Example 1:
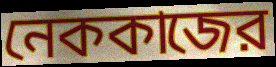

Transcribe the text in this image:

নেককাজের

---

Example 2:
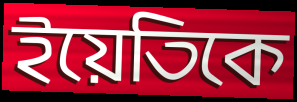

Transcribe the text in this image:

ইয়েতিকে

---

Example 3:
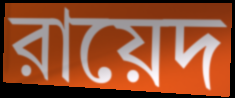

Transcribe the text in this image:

রায়েদ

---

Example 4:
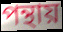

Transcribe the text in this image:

পন্থায়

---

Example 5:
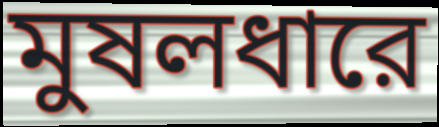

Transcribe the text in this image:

মুষলধারে